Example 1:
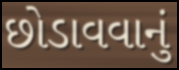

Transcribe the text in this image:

છોડાવવાનું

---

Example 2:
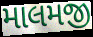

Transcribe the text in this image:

માલમજી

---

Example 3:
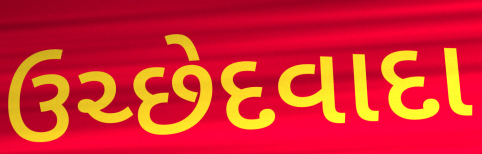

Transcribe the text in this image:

ઉચ્છેદવાદા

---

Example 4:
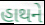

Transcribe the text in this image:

હાથને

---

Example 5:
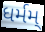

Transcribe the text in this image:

ધર્મમ્